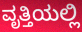
ವೃತ್ತಿಯಲ್ಲಿ